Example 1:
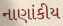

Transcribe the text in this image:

નાણાંકીય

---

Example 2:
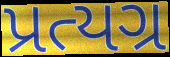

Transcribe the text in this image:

પ્રત્યગ્ર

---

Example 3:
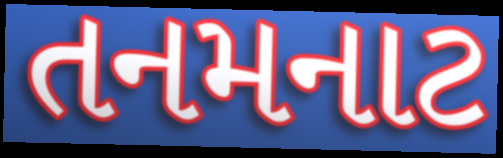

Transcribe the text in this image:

તનમનાટ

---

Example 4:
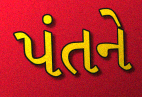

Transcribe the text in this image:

પંતને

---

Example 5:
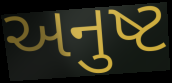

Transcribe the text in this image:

અનુષ્ટ